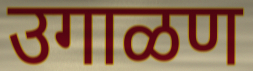
उगाळण